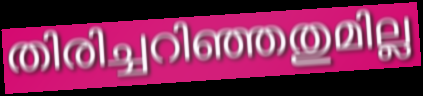
തിരിച്ചറിഞ്ഞതുമില്ല